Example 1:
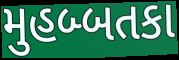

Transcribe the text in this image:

મુહબ્બતકા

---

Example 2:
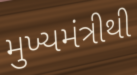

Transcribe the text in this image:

મુખ્યમંત્રીથી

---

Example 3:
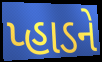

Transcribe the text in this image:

પ્હાડને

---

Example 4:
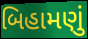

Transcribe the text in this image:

બિહામણું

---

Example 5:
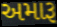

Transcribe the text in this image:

અમારૂ